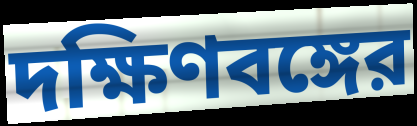
দক্ষিণবঙ্গের